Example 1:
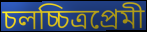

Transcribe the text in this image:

চলচ্চিত্রপ্রেমী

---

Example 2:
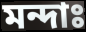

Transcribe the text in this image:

মন্দাঃ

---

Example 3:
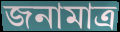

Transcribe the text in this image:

জনামাত্র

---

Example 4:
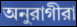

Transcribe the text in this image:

অনুরাগীরা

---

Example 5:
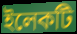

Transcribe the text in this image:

ইলেকটি